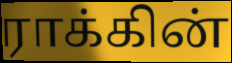
ராக்கின்